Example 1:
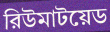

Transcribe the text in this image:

রিউমাটয়েড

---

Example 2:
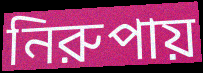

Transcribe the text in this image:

নিরুপায়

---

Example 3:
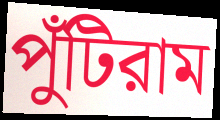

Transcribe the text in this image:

পুঁটিরাম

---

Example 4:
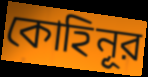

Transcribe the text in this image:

কোহিনূর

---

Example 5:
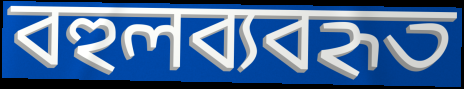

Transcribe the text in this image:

বহুলব্যবহৃত